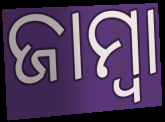
ଜାମ୍ବା